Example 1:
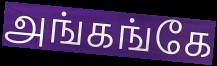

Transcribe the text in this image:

அங்கங்கே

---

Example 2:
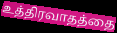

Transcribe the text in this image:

உத்திரவாதத்தை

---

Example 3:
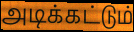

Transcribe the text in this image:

அடிக்கட்டும்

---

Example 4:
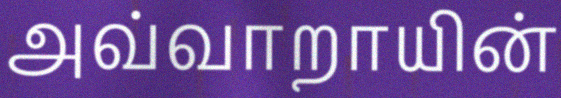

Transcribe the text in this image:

அவ்வாறாயின்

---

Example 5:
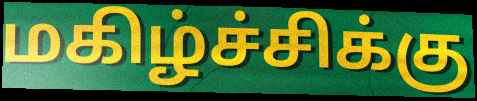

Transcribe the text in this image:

மகிழ்ச்சிக்கு